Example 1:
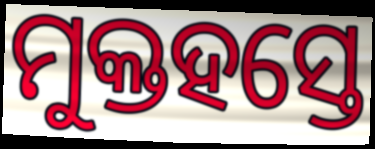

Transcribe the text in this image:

ମୁକ୍ତହସ୍ତେ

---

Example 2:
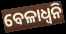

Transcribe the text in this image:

ବେଳାଧ୍ୱନି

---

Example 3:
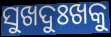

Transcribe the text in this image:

ସୁଖଦୁଃଖକୁ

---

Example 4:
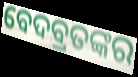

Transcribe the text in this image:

ବେଦବ୍ରତଙ୍କର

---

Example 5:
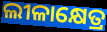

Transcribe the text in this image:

ଲୀଳାକ୍ଷେତ୍ର